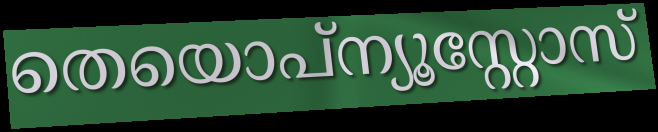
തെയൊപ്ന്യൂസ്റ്റോസ്